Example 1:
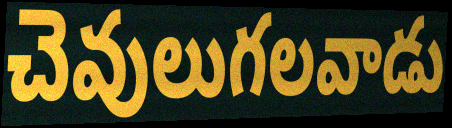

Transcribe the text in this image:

చెవులుగలవాడు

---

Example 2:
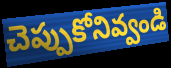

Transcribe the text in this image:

చెప్పుకోనివ్వండి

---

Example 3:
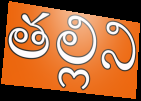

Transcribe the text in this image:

తల్లిని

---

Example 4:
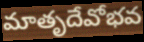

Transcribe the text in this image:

మాతృదేవోభవ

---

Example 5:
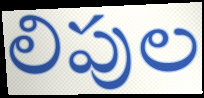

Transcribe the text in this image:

లిపుల